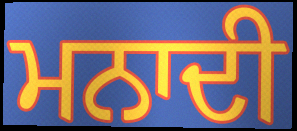
ਮਨਾਦੀ